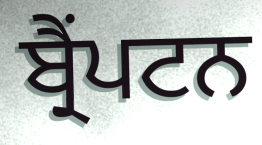
ਬ੍ਰੈਂਪਟਨ